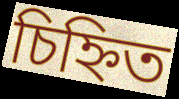
চিহ্নিত